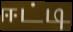
ஈட்டி